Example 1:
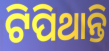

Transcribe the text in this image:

ଟିପିଥାନ୍ତି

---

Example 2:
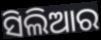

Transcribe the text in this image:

ସିଲିଆର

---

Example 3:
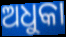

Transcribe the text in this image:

ଅଧୁକା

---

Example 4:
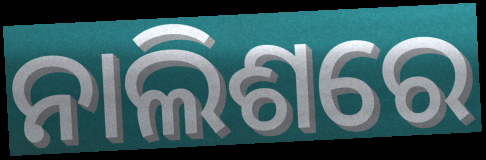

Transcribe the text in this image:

ନାଲିଶରେ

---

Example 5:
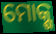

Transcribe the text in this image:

ମୋକ୍ଶ